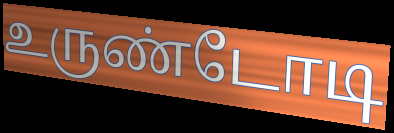
உருண்டோடி